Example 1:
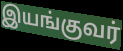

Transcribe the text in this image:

இயங்குவர்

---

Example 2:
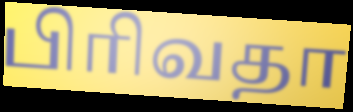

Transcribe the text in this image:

பிரிவதா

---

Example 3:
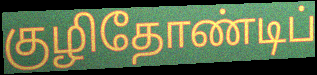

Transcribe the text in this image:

குழிதோண்டிப்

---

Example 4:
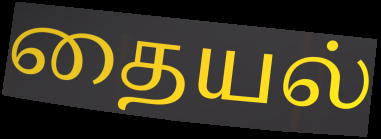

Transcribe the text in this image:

தையல்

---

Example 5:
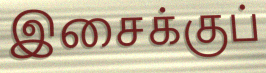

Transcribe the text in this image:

இசைக்குப்